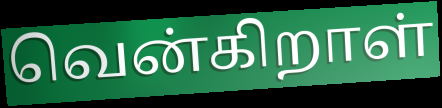
வென்கிறாள்